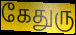
கேதுரு